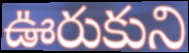
ఊరుకుని